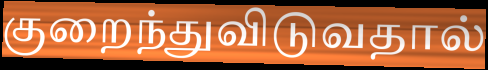
குறைந்துவிடுவதால்